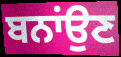
ਬਨਾਂਉਣ